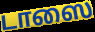
டாஸை